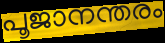
പൂജാനന്തരം